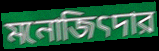
মনোজিৎদার